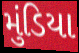
મુંડિયા